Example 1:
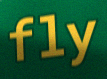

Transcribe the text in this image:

fly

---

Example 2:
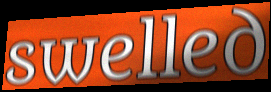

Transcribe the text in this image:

swelled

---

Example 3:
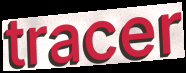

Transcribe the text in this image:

tracer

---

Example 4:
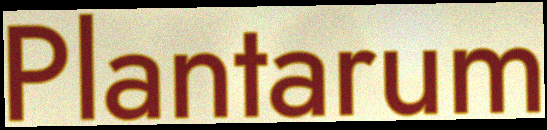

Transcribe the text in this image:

Plantarum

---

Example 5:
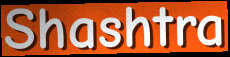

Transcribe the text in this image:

Shashtra